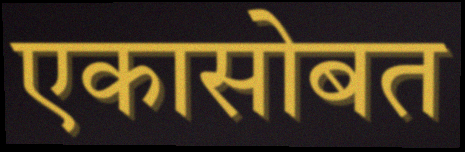
एकासोबत